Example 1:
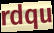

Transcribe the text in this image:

rdqu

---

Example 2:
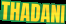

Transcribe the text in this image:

THADANI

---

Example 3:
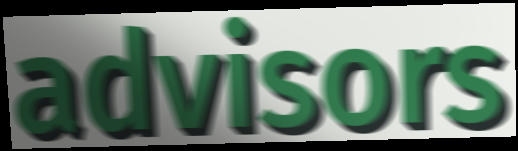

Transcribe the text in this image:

advisors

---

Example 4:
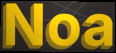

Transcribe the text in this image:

Noa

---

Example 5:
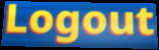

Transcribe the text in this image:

Logout